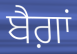
ਬੈਗ਼ਾਂ